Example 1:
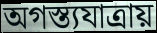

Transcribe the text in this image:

অগস্ত্যযাত্রায়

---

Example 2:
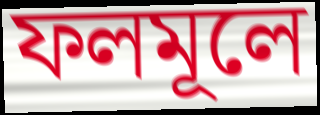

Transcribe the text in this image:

ফলমূলে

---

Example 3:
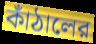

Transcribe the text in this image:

কাঁঠালের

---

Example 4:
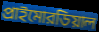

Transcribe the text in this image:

প্রাইমোরডিয়াল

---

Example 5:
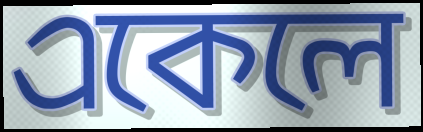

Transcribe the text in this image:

একেলে